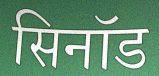
सिनॉड